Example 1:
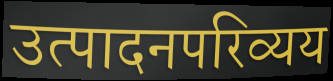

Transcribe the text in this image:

उत्पादनपरिव्यय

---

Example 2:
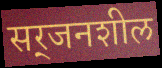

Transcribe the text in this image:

सर्जनशील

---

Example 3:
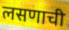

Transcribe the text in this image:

लसणाची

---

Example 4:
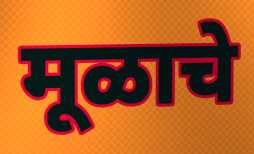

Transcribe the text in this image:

मूळाचे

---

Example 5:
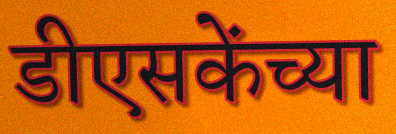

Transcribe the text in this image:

डीएसकेंच्या